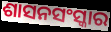
ଶାସନସଂସ୍କାର